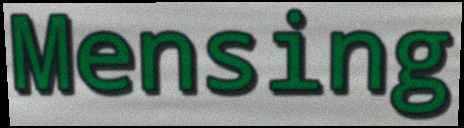
Mensing